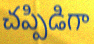
చప్పిడిగా